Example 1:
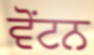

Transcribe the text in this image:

ਵੋਂਟਨ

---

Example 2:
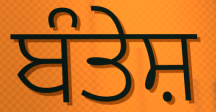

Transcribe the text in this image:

ਬੰਤੇਸ਼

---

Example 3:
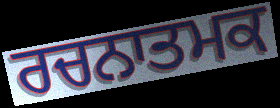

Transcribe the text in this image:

ਰਚਨਾਤਮਕ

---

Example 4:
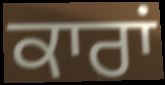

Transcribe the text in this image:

ਕਾਰਾਂ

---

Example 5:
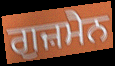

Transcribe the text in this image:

ਗੁਜ਼ਮੈਨ